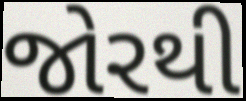
જોરથી